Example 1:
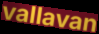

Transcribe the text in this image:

vallavan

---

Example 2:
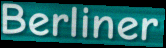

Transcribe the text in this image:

Berliner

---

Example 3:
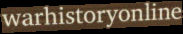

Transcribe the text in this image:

warhistoryonline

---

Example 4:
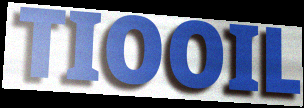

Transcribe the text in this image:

TIOOIL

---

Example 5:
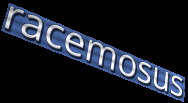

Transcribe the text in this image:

racemosus